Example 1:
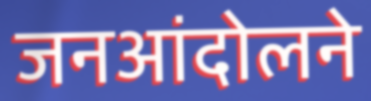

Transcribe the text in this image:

जनआंदोलने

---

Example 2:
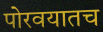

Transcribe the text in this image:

पोरवयातच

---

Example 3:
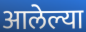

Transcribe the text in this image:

आलेल्या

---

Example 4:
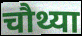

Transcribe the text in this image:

चौथ्या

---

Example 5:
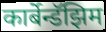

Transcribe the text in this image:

कार्बेन्डॅझिम